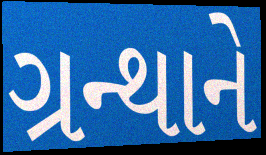
ગ્રન્થાને